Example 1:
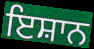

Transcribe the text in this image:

ਇਸ਼ਾਨ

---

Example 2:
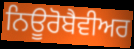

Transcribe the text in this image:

ਨਿਊਰੋਬੈਵੀਅਰ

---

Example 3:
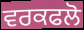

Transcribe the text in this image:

ਵਰਕਫਲੋ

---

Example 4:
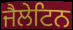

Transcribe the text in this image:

ਜੈਲੇਟਿਨ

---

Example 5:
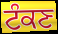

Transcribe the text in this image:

ਟੰਕਣ